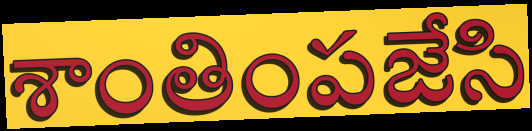
శాంతింపజేసి